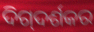
ଦିଗ୍‍ଦର୍ଶକର